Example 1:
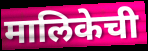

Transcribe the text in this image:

मालिकेची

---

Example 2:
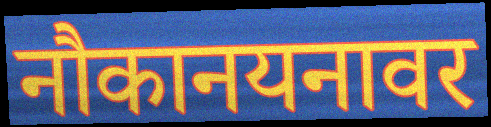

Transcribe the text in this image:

नौकानयनावर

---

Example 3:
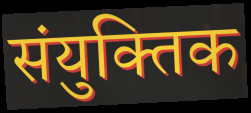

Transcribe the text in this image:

संयुक्‍तिक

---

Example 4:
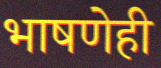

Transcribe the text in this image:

भाषणेही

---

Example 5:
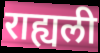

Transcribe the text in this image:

राह्यली